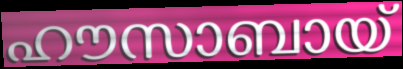
ഹൗസാബായ്